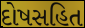
દોષસહિત